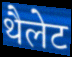
थैलेट